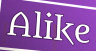
Alike